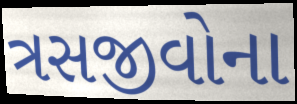
ત્રસજીવોના